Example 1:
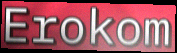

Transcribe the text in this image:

Erokom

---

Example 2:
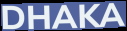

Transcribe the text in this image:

DHAKA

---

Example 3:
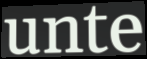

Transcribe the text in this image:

unte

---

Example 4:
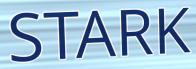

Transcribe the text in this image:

STARK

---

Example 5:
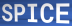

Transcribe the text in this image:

SPICE